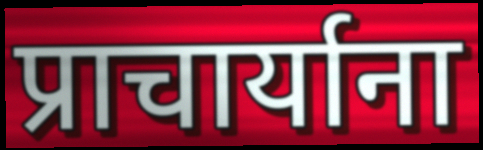
प्राचार्याना